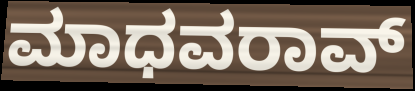
ಮಾಧವರಾವ್